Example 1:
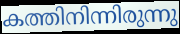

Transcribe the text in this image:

കത്തിനിന്നിരുന്നു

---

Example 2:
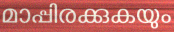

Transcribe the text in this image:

മാപ്പിരക്കുകയും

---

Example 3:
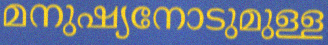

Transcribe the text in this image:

മനുഷ്യനോടുമുള്ള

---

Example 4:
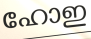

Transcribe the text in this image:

ഹോഇ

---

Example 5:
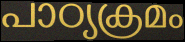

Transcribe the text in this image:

പാഠ്യക്രമം